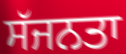
ਸੱਜਨਤਾ